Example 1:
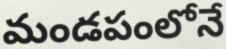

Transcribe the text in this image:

మండపంలోనే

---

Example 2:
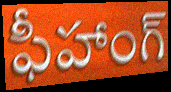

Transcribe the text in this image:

ఫీహాంగ్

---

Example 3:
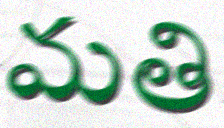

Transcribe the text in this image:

మతి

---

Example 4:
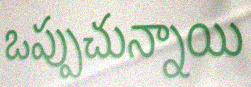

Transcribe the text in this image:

ఒప్పుచున్నాయి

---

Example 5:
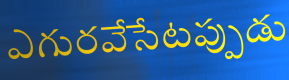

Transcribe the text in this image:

ఎగురవేసేటప్పుడు